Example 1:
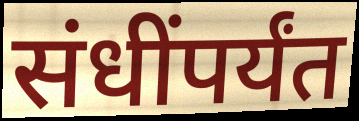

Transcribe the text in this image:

संधींपर्यंत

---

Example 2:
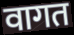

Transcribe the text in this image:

वागत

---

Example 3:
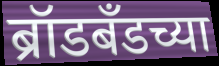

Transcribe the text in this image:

ब्रॉडबँडच्या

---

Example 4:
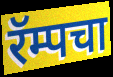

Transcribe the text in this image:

रॅम्पचा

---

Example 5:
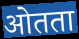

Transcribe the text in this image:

ओतता